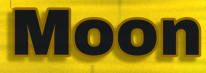
Moon